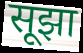
सूझा